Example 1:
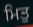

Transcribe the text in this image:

ਮਿਤੁ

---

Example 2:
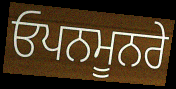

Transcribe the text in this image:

ਓਪਨਮੂਨਰੇ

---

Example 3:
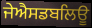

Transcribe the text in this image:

ਜੇਐਸਡਬਲਿਊ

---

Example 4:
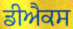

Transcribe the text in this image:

ਡੀਐਕਸ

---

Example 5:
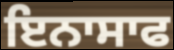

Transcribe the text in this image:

ਇਨਾਸਾਫ